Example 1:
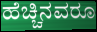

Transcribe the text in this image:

ಹೆಚ್ಚಿನವರೂ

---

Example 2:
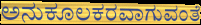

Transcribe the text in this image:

ಅನುಕೂಲಕರವಾಗುವಂತೆ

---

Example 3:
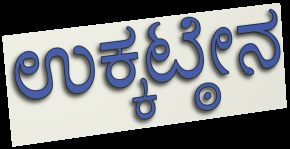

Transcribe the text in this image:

ಉಕ್ಕಟ್ಠೇನ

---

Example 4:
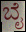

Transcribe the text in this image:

ಬೈ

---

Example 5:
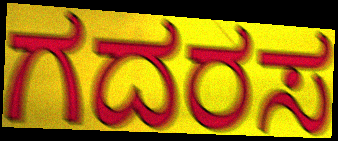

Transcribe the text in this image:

ಗದರಸ